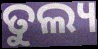
ତୁଲ୍ୟ